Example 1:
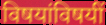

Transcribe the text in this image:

विषयांविषयीं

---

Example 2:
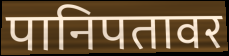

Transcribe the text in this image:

पानिपतावर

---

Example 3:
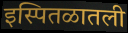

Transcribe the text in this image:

इस्पितळातली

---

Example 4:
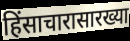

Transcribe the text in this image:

हिंसाचारासारख्या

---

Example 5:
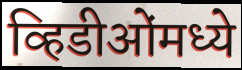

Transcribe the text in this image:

व्हिडीओंमध्ये